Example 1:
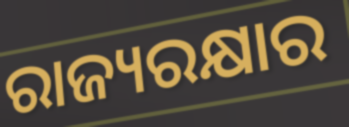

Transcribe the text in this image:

ରାଜ୍ୟରକ୍ଷାର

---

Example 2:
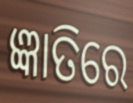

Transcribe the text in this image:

ଜ୍ଞାତିରେ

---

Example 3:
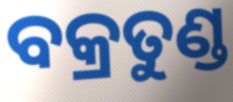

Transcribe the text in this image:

ବକ୍ରତୁଣ୍ଡ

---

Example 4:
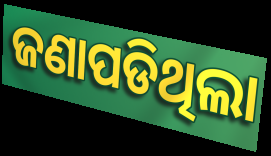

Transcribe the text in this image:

ଜଣାପଡିଥିଲା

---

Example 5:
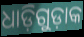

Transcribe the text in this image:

ଧାଡ଼ିଗୁଡ଼ାକ